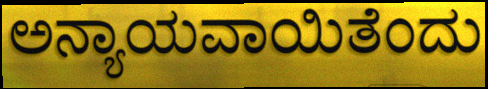
ಅನ್ಯಾಯವಾಯಿತೆಂದು